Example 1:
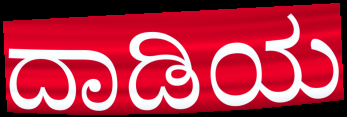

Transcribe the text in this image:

ದಾಡಿಯ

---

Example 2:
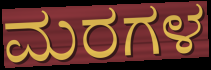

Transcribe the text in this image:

ಮರಗಳ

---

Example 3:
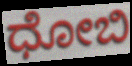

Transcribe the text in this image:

ಧೋಬಿ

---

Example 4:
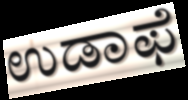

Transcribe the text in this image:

ಉಡಾಫೆ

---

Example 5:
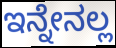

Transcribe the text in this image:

ಇನ್ನೇನಲ್ಲ